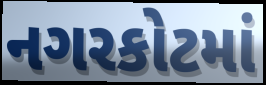
નગરકોટમાં